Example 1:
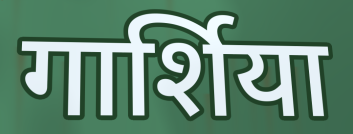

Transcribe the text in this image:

गार्शिया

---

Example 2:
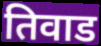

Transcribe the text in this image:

तिवाड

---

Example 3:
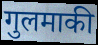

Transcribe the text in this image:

गुलमाकी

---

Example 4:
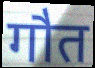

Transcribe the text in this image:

गौत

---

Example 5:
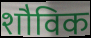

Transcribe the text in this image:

शौविक